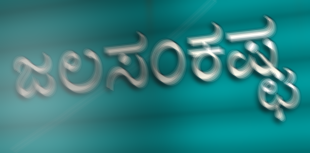
ಜಲಸಂಕಷ್ಟ